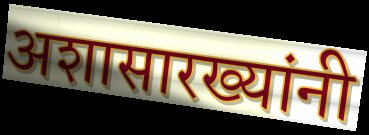
अशासारख्यांनी